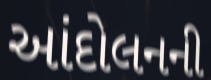
આંદોલનની